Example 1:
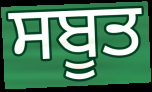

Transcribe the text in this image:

ਸਬੂਤ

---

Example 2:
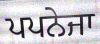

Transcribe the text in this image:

ਪਪਨੇਜਾ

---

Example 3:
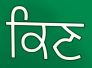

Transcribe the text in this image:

ਕਿਣ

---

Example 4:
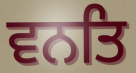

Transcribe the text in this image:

ਵਨਤਿ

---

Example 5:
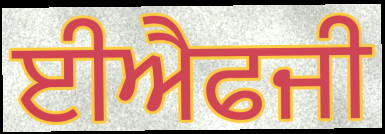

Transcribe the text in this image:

ਈਐਫਜੀ